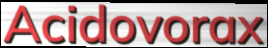
Acidovorax